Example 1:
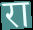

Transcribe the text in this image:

रा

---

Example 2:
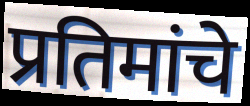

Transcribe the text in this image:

प्रतिमांचे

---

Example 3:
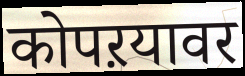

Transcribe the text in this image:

कोपऱयावर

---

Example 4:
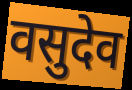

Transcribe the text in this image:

वसुदेव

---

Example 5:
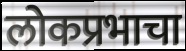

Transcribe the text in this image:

लोकप्रभाचा